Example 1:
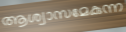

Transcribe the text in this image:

ആശ്വാസമേകുന്ന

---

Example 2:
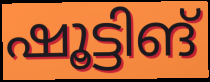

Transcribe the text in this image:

ഷൂട്ടിങ്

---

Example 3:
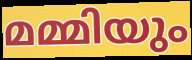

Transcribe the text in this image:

മമ്മിയും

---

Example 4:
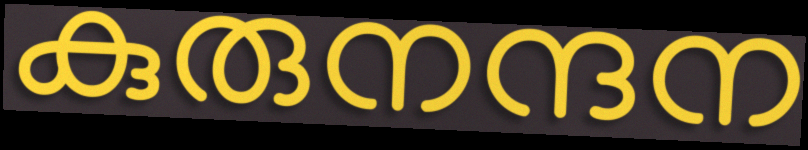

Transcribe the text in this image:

കുരുനന്ദന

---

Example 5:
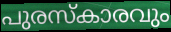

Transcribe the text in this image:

പുരസ്കാരവും